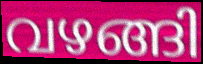
വഴങ്ങി